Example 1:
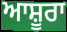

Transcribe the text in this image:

ਆਸ਼ੂਰਾ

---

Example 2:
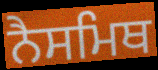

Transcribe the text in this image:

ਨੈਸਮਿਥ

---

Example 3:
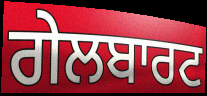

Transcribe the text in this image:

ਗੇਲਬਾਰਟ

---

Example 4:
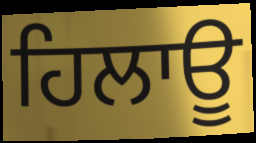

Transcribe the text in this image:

ਹਿਲਾਊ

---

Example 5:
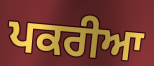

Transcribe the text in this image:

ਪਕਰੀਆ